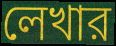
লেখার